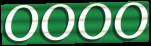
OOOO